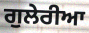
ਗੁਲੇਰੀਆ